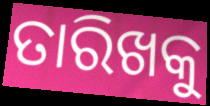
ତାରିଖକୁ